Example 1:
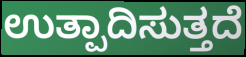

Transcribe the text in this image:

ಉತ್ಪಾದಿಸುತ್ತದೆ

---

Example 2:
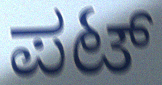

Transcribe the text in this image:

ಪಟ್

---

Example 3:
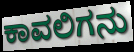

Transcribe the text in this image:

ಕಾವಲಿಗನು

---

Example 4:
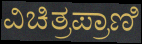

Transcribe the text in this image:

ವಿಚಿತ್ರಪ್ರಾಣಿ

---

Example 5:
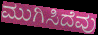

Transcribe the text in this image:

ಮುಗಿಸಿದೆವು